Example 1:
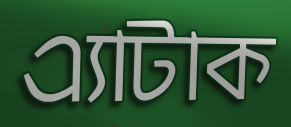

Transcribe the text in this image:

এ্যাটাক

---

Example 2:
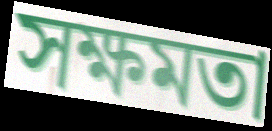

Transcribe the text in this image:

সক্ষমতা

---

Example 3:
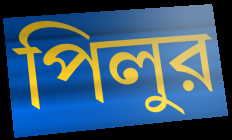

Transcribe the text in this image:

পিলুর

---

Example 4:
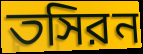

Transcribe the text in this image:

তসিরন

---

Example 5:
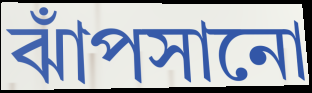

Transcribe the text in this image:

ঝাঁপসানো